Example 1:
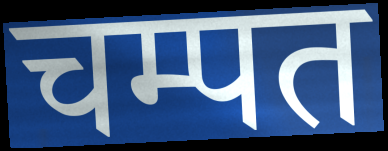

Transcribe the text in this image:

चम्पत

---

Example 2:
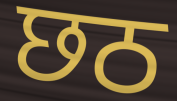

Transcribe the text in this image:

छठ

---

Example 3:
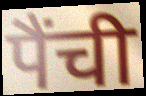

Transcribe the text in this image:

पैंची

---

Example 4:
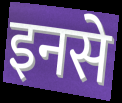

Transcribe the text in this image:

इनसे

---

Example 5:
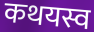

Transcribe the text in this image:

कथयस्व